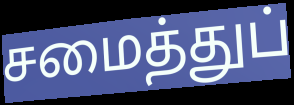
சமைத்துப்